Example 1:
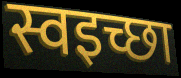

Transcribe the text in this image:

स्वइच्छा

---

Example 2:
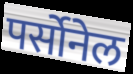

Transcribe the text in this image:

पर्सोनेल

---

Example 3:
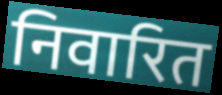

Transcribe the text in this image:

निवारित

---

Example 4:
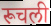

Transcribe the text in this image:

रूचली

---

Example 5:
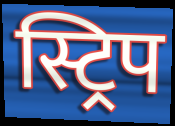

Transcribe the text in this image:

स्ट्रिप